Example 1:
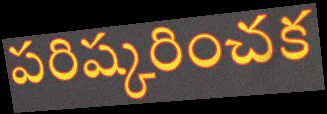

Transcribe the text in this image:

పరిష్కరించక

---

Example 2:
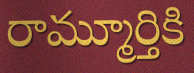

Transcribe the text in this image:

రామ్మూర్తికి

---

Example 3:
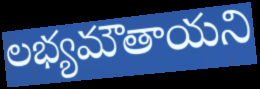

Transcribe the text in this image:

లభ్యమౌతాయని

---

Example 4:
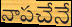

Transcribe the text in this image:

నాపచేనే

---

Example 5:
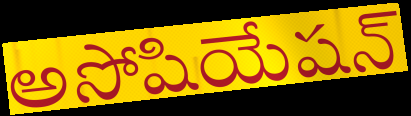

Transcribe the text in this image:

అసోషియేషన్